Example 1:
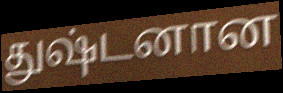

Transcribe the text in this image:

துஷ்டனான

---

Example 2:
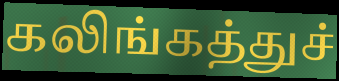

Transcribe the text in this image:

கலிங்கத்துச்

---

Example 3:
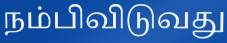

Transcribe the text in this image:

நம்பிவிடுவது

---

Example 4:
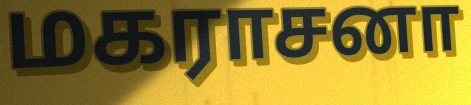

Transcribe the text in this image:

மகராசனா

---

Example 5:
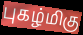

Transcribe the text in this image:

புகழ்மிகு